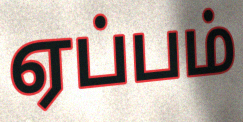
ஏப்பம்